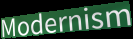
Modernism